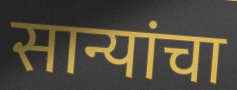
सान्यांचा